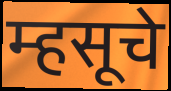
म्हसूचे